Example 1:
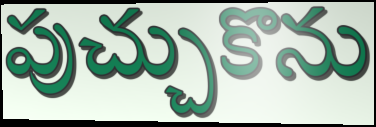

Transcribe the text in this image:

పుచ్చుకొను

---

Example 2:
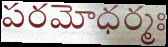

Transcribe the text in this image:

పరమోధర్మః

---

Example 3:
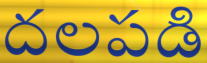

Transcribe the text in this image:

దలపడి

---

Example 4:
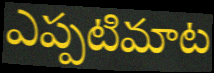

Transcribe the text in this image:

ఎప్పటిమాట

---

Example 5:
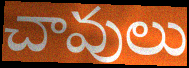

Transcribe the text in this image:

చావులు